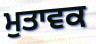
ਮੁਤਾਵਕ